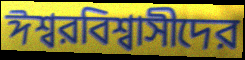
ঈশ্বরবিশ্বাসীদের